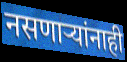
नसणार्‍यांनाही